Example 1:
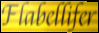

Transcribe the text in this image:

Flabellifer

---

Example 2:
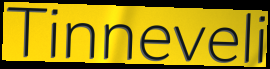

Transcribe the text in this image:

Tinneveli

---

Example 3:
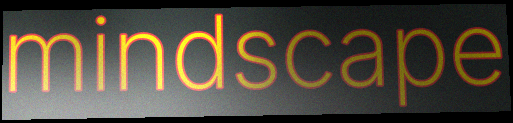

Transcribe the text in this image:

mindscape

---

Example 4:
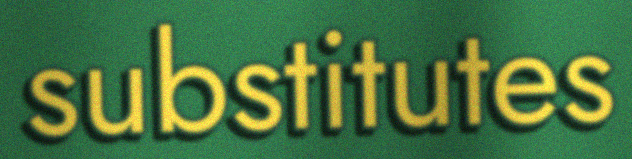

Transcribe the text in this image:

substitutes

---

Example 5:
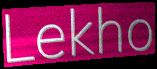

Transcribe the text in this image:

Lekho